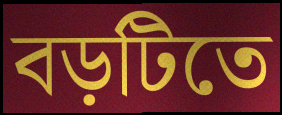
বড়টিতে